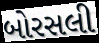
બોરસલી